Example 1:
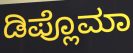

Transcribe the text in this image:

ಡಿಪ್ಲೊಮಾ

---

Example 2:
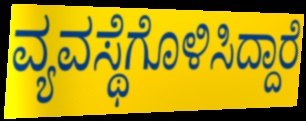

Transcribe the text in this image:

ವ್ಯವಸ್ಥೆಗೊಳಿಸಿದ್ದಾರೆ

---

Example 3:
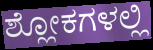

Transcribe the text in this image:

ಶ್ಲೋಕಗಳಲ್ಲಿ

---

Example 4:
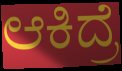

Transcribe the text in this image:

ಆಕಿದ್ರೆ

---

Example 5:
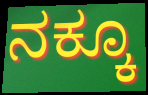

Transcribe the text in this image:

ನಕ್ಕೂ